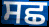
ਸਛ